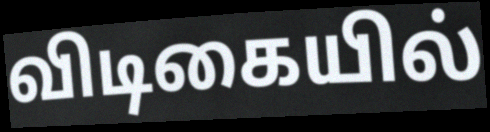
விடிகையில்